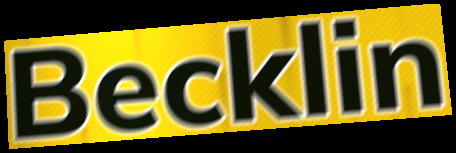
Becklin